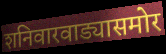
शनिवारवाड्यासमोर